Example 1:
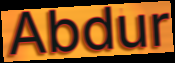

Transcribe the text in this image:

Abdur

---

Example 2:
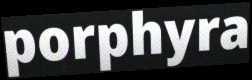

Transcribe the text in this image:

porphyra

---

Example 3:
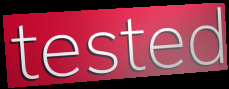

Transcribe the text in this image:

tested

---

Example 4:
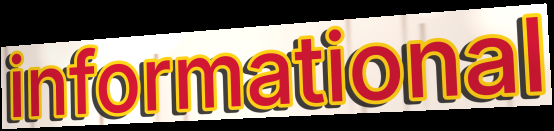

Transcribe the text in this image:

informational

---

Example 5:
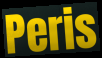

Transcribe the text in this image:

Peris